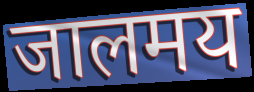
जालमय